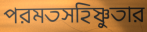
পরমতসহিষ্ণুতার